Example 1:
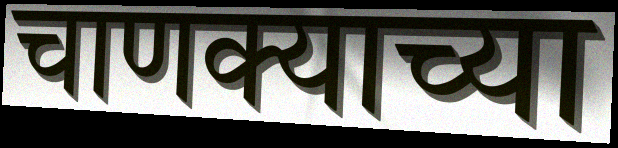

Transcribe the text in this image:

चाणक्याच्या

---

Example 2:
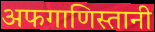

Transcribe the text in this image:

अफगाणिस्तानी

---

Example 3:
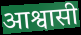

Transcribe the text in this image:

आश्वासी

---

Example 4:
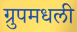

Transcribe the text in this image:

ग्रुपमधली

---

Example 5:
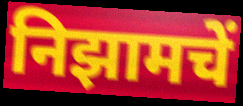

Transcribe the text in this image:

निझामचें